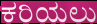
ಕರಿಯಲು